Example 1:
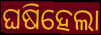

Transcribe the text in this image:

ଘଷିହେଲା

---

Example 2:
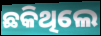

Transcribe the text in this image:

ଛକିଥିଲେ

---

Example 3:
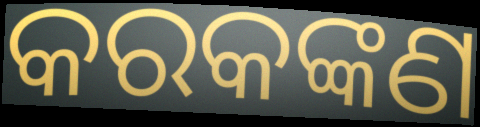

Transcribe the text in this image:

କରକଙ୍କଣ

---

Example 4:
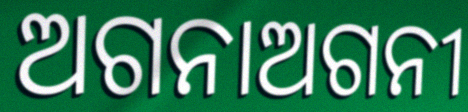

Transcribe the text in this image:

ଅଗନାଅଗନୀ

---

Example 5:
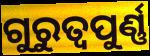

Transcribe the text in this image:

ଗୁରୁତ୍ୱପୁର୍ଣ୍ଣ